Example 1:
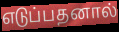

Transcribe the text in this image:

எடுப்பதனால்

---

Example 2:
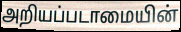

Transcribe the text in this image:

அறியப்படாமையின்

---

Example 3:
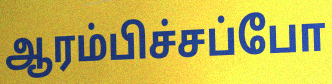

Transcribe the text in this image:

ஆரம்பிச்சப்போ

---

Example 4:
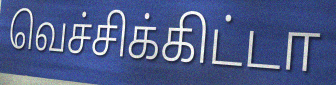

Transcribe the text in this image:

வெச்சிக்கிட்டா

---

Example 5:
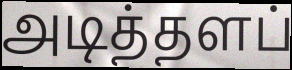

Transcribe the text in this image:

அடித்தளப்